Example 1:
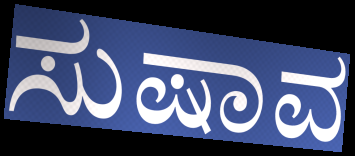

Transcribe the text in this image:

ಸುಷಾವ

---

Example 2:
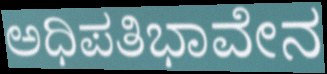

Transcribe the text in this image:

ಅಧಿಪತಿಭಾವೇನ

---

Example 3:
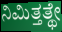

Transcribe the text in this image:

ನಿಮಿತ್ತತ್ಥೇ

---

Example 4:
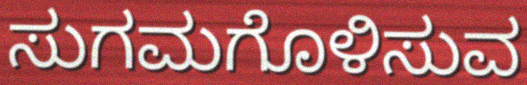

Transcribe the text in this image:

ಸುಗಮಗೊಳಿಸುವ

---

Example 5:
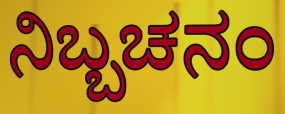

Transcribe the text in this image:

ನಿಬ್ಬಚನಂ